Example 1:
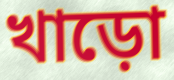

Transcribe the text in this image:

খাড়ো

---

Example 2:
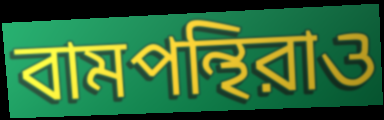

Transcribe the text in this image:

বামপন্থিরাও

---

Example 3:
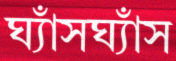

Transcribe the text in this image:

ঘ্যাঁসঘ্যাঁস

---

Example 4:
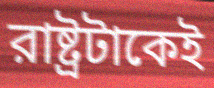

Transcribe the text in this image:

রাষ্ট্রটাকেই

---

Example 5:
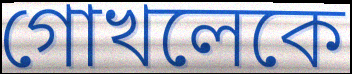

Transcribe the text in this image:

গোখলেকে